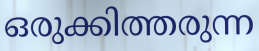
ഒരുക്കിത്തരുന്ന